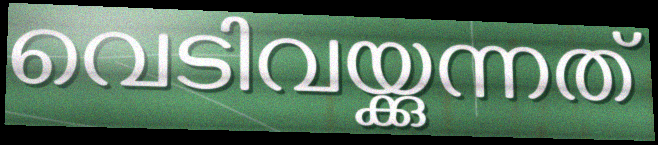
വെടിവയ്ക്കുന്നത്